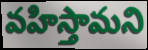
వహిస్తామని